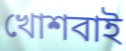
খোশবাই